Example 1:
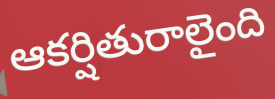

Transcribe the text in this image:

ఆకర్షితురాలైంది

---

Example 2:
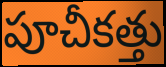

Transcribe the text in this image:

పూచీకత్తు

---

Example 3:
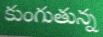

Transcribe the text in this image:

కుంగుతున్న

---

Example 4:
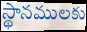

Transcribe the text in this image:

స్థానములకు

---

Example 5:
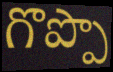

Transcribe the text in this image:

గొప్పొ